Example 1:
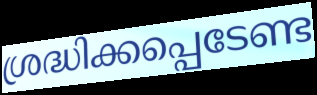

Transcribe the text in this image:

ശ്രദ്ധിക്കപ്പെടേണ്ട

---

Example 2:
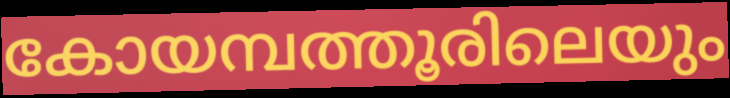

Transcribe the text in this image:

കോയമ്പത്തൂരിലെയും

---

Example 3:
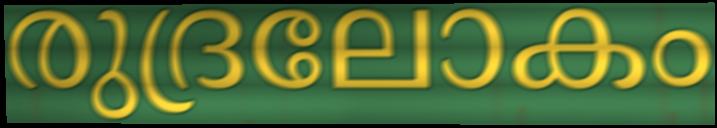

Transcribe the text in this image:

രുദ്രലോകം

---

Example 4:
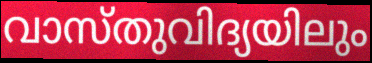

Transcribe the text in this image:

വാസ്തുവിദ്യയിലും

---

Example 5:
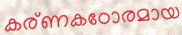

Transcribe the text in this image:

കര്ണകഠോരമായ